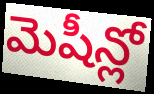
మెషీన్లో